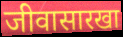
जीवासारखा